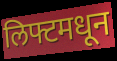
लिफ्टमधून